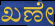
ಖಣೇ